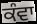
ਕੰਵਾ